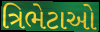
ત્રિભેટાઓ